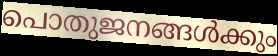
പൊതുജനങ്ങൾക്കും